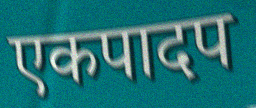
एकपादप